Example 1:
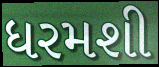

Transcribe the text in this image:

ધરમશી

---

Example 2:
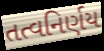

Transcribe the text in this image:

તત્વનિર્ણય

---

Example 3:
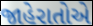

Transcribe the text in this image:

જાહેરાતોએ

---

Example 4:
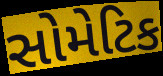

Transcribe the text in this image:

સોમેટિક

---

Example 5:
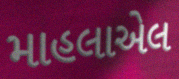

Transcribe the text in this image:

માહલાએલ